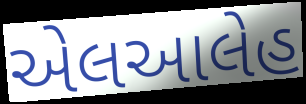
એલઆલેહ